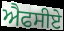
ਐਫਸੀਏ